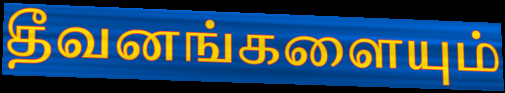
தீவனங்களையும்